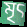
মৃৎ